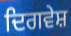
ਦਿਗਵੇਸ਼